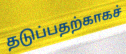
தடுப்பதற்காகச்